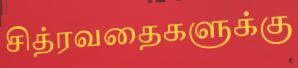
சித்ரவதைகளுக்கு